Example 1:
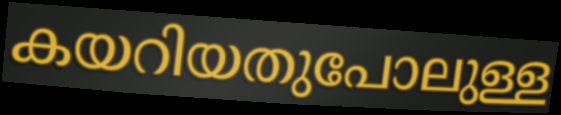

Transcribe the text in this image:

കയറിയതുപോലുള്ള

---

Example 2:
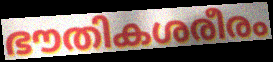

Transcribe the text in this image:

ഭൗതികശരീരം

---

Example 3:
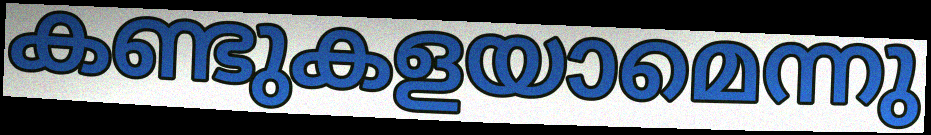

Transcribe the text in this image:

കണ്ടുകളയാമെന്നു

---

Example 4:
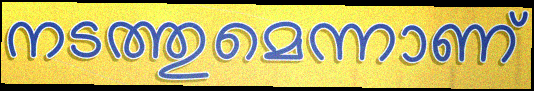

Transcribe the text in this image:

നടത്തുമെന്നാണ്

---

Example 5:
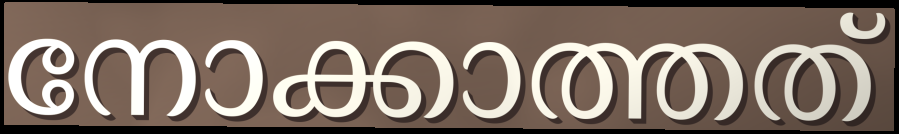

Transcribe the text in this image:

നോക്കാത്തത്